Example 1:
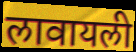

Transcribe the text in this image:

लावायली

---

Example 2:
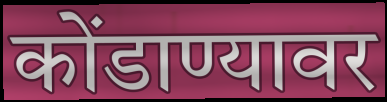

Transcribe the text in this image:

कोंडाण्यावर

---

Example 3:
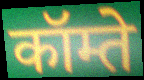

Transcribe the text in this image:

कॉम्ते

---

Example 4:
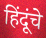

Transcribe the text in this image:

हिंदूंचे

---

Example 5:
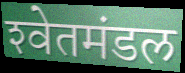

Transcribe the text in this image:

श्वेतमंडल